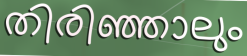
തിരിഞ്ഞാലും